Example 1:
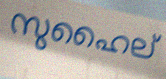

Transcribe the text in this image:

സുഹൈല്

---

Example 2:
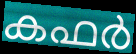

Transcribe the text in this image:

കഫർ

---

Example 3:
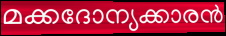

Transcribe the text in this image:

മക്കദോന്യക്കാരൻ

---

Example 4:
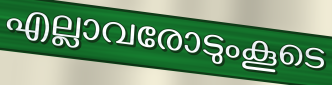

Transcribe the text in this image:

എല്ലാവരോടുംകൂടെ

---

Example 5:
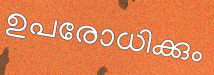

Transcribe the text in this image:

ഉപരോധിക്കും